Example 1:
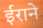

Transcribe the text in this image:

ईराने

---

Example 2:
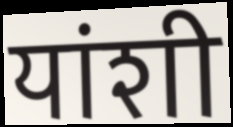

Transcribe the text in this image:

यांशी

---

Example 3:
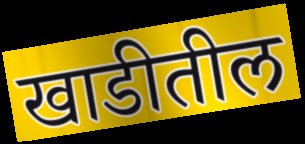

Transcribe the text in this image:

खाडीतील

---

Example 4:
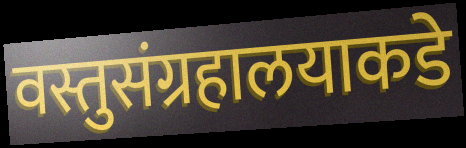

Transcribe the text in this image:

वस्तुसंग्रहालयाकडे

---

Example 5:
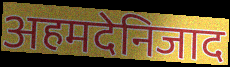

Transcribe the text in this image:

अहमदेनिजाद